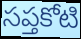
సప్తకోటి